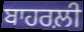
ਬਾਹਰਲ਼ੀ